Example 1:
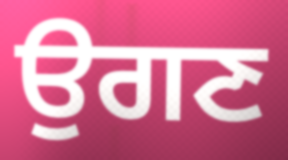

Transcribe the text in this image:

ਉਗਣ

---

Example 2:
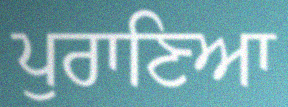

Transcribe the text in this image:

ਪੁਰਾਣਿਆ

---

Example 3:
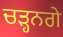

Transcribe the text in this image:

ਚੜ੍ਹਨਗੇ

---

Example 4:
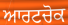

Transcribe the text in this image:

ਆਰਟਚੋਕ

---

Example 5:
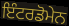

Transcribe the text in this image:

ਇੰਟਰਡੋਮੇਨ